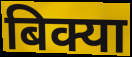
बिक्या